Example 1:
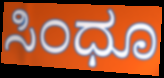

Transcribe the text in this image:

ಸಿಂಧೂ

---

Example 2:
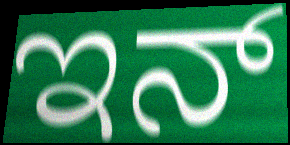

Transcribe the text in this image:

ಇನ್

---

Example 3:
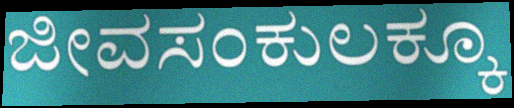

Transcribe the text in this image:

ಜೀವಸಂಕುಲಕ್ಕೂ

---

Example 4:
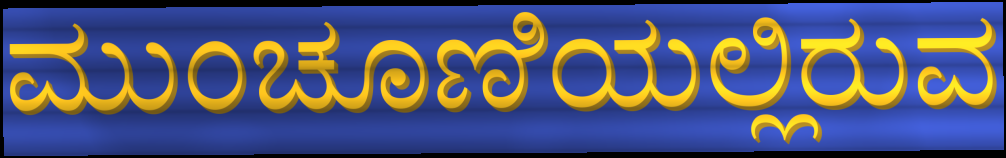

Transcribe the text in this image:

ಮುಂಚೂಣಿಯಲ್ಲಿರುವ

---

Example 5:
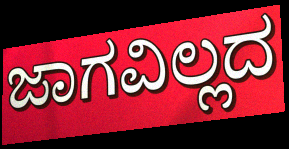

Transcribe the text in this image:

ಜಾಗವಿಲ್ಲದ